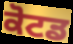
ਕੋਟਡ